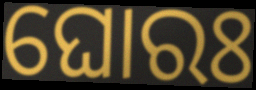
ଘୋରଃ